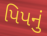
પિપનું